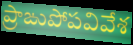
ప్రాఙుపోపవివేశ